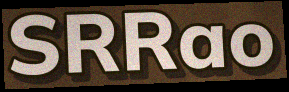
SRRao